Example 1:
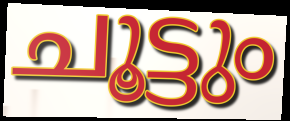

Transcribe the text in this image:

ചൂട്ടും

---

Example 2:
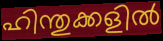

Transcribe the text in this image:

ഹിന്തുക്കളിൽ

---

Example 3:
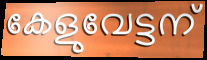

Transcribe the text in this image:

കേളുവേട്ടന്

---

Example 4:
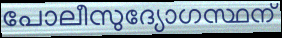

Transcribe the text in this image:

പോലീസുദ്യോഗസ്ഥന്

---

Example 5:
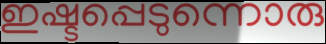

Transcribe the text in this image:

ഇഷ്ടപ്പെടുന്നൊരു